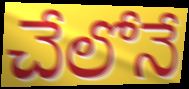
చేలోనే